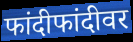
फांदीफांदीवर